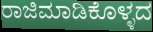
ರಾಜಿಮಾಡಿಕೊಳ್ಳದ